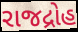
રાજદ્રોહ